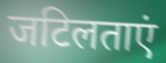
जटिलताएं